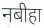
नबीहा